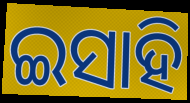
ଇସାହି